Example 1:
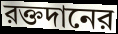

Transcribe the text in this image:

রক্তদানের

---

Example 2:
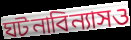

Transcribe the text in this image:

ঘটনাবিন্যাসও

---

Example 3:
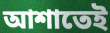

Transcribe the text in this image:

আশাতেই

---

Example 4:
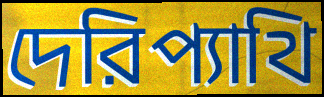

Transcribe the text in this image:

দেরিপ্যাথি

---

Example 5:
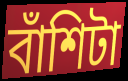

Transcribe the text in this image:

বাঁশিটা